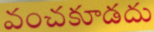
వంచకూడదు